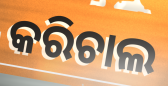
କରିଚାଲ